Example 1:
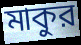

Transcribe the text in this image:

মাকুর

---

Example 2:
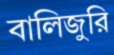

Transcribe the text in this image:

বালিজুরি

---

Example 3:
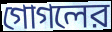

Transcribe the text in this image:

গোগলের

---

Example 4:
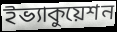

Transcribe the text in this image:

ইভ্যাকুয়েশন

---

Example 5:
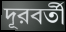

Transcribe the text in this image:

দূরবর্তী